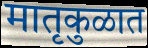
मातृकुळात